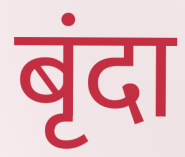
बृंदा